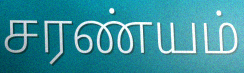
சரண்யம்